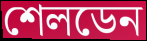
শেলডেন